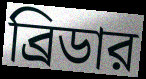
ব্রিডার